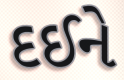
દઈને